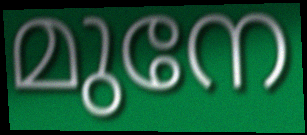
മുനേ